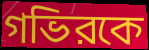
গভিরকে